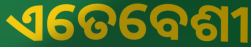
ଏତେବେଶୀ